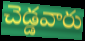
చెడ్డవారు